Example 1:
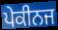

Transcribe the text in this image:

ਪੇਕੀਨਜ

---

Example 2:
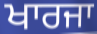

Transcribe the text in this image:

ਖਾਰਜਾ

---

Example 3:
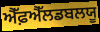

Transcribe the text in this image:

ਐੱਫ਼ਐੱਲਡਬਲਯੂ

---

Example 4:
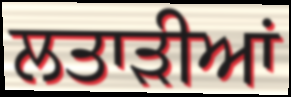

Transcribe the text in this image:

ਲਤਾੜੀਆਂ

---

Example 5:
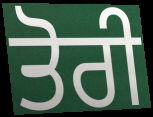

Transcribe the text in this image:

ਤੋਰੀ